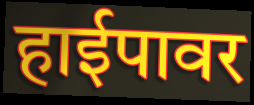
हाईपावर